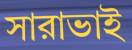
সারাভাই